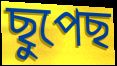
ছুপেছ